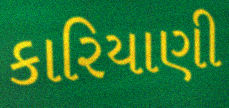
કારિયાણી